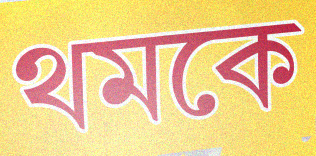
থমকে